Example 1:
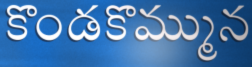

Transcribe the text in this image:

కొండకొమ్మున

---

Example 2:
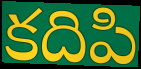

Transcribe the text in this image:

కదిపి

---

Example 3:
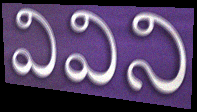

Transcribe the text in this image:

వివిని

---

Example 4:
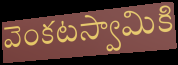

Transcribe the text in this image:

వెంకటస్వామికి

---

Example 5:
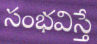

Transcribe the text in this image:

సంభవిస్తే